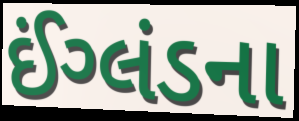
ઈંગ્લંડના